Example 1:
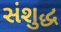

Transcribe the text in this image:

સંશુદ્ધ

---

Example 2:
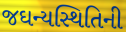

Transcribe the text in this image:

જઘન્યસ્થિતિની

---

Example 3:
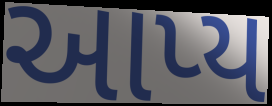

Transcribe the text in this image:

આપ્ય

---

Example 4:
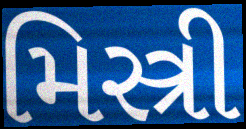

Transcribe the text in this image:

મિસ્ત્રી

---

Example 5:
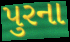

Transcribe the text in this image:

પુરના